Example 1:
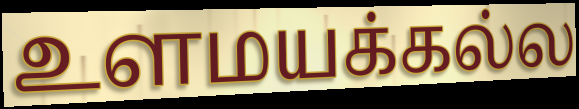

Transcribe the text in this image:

உளமயக்கல்ல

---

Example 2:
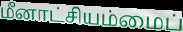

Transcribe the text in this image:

மீனாட்சியம்மைப்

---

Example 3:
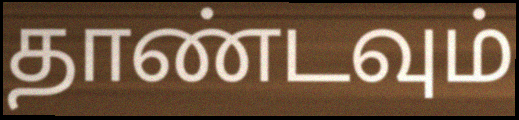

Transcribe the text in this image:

தாண்டவும்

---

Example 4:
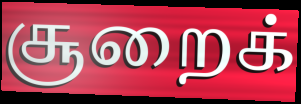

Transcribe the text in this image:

சூறைக்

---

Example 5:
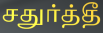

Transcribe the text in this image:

சதுர்த்தீ